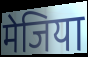
मेजिया